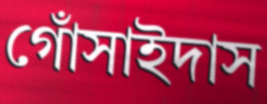
গোঁসাইদাস